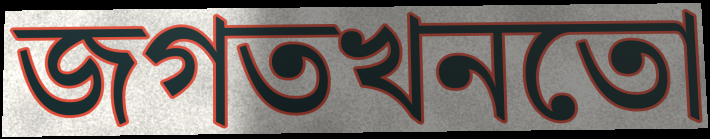
জগতখনতো